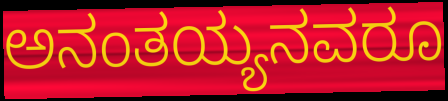
ಅನಂತಯ್ಯನವರೂ